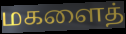
மகளைத்